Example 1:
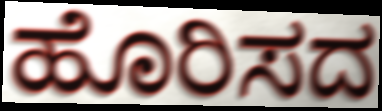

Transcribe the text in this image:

ಹೊರಿಸದ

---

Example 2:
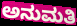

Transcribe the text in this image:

ಅನುಮತಿ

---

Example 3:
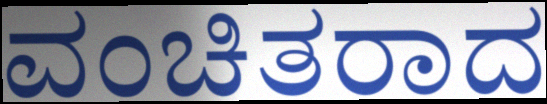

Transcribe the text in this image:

ವಂಚಿತರಾದ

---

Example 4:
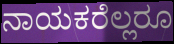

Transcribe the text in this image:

ನಾಯಕರೆಲ್ಲರೂ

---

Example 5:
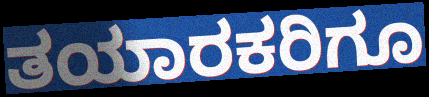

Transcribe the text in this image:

ತಯಾರಕರಿಗೂ